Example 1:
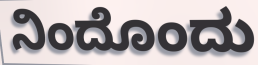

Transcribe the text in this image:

ನಿಂದೊಂದು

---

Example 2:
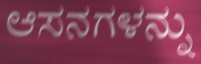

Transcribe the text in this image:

ಆಸನಗಳನ್ನು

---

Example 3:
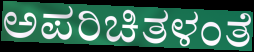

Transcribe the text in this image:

ಅಪರಿಚಿತಳಂತೆ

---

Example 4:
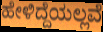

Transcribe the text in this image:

ಹೇಳಿದ್ದೆಯಲ್ಲವೆ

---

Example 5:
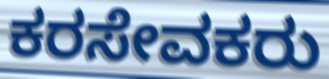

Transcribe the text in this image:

ಕರಸೇವಕರು